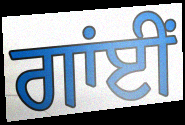
ਗਾਂਈਂ